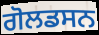
ਗੋਲਡਸਨ